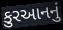
કુરઆનનું